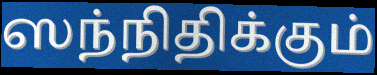
ஸந்நிதிக்கும்